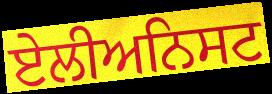
ਏਲੀਅਨਿਸਟ